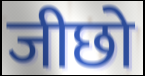
जीछो